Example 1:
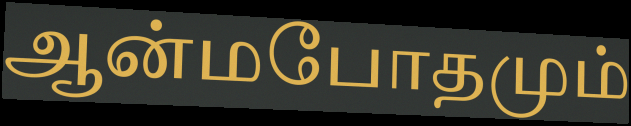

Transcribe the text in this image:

ஆன்மபோதமும்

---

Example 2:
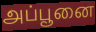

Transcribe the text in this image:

அப்பூனை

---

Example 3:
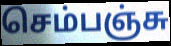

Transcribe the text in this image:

செம்பஞ்சு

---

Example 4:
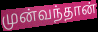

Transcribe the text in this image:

முன்வந்தான்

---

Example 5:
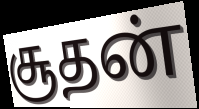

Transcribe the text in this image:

சூதன்